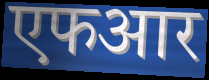
एफआर